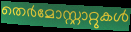
തെർമോസ്റ്റാറ്റുകൾ